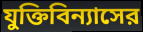
যুক্তিবিন্যাসের